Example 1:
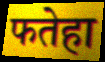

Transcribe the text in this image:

फतेहा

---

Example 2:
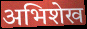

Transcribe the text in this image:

अभिशेख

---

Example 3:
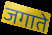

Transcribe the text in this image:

जगाते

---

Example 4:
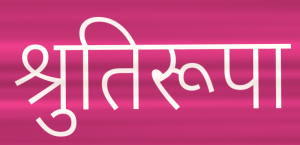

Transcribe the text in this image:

श्रुतिरूपा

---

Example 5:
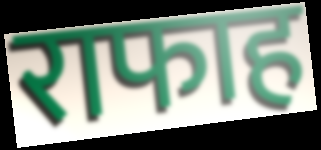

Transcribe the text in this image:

राफाह